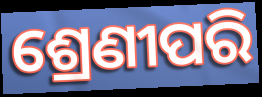
ଶ୍ରେଣୀପରି